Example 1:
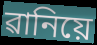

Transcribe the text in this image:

ৱানিয়ে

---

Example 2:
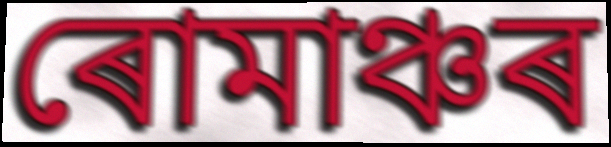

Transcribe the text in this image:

ৰোমাঞ্চৰ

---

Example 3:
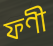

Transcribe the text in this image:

ফণী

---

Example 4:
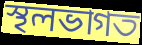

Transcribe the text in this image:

স্থলভাগত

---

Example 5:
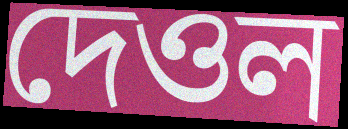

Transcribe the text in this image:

দেওল